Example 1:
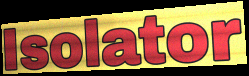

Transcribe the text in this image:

Isolator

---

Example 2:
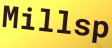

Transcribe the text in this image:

Millsp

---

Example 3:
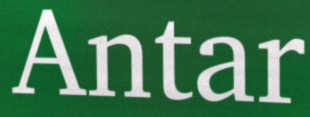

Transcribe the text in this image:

Antar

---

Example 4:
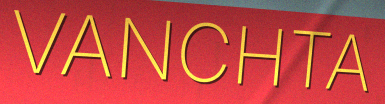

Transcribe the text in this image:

VANCHTA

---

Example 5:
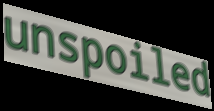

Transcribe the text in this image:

unspoiled